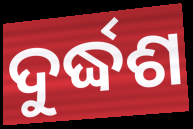
ଦୁର୍ଦ୍ଧଶ